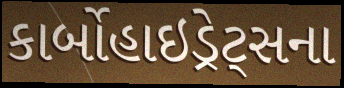
કાર્બોહાઇડ્રેટ્સના